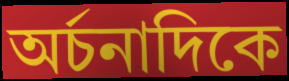
অর্চনাদিকে